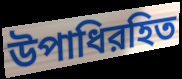
উপাধিরহিত